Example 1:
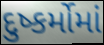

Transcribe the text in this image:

દુષ્કર્મોમાં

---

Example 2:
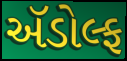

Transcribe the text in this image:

ઍડોલ્ફ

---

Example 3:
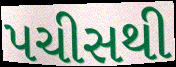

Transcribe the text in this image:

પચીસથી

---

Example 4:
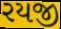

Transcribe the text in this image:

રયજી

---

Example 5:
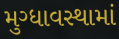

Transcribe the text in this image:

મુગ્ધાવસ્થામાં